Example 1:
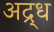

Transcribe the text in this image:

अद्र्ध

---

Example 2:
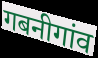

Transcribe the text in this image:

गबनीगांव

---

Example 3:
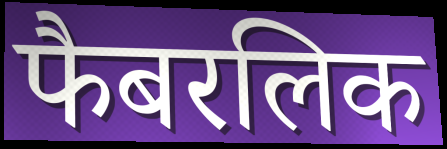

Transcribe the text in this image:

फैबरलिक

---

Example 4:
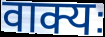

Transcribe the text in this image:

वाक्यः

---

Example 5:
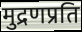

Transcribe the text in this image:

मुद्रणप्रति